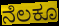
ನೆಲಕೂ